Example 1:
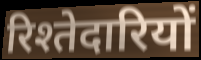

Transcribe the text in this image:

रिश्तेदारियों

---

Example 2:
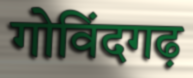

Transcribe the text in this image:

गोविंदगढ़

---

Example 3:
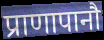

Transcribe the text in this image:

प्राणापानौ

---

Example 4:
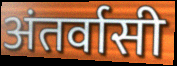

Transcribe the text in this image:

अंतर्वासी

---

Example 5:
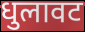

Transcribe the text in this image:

धुलावट